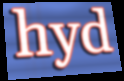
hyd